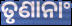
ତୃଣାନାଂ